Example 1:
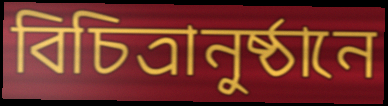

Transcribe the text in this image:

বিচিত্রানুষ্ঠানে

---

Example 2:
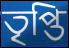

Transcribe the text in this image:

তৃপ্তি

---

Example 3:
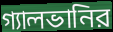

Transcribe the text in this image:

গ্যালভানির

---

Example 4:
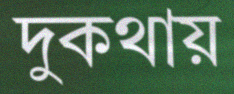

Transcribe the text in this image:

দুকথায়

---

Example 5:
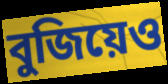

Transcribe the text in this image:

বুজিয়েও